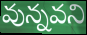
వున్నవని